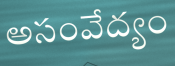
అసంవేద్యం